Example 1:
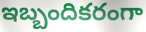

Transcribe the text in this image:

ఇబ్బందికరంగా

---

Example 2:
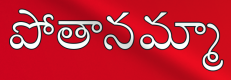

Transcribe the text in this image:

పోతానమ్మా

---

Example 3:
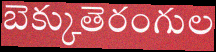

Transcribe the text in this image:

బెక్కుతెరంగుల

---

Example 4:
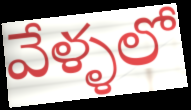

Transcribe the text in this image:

వేళ్ళలో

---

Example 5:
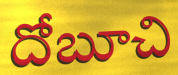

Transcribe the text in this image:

దోబూచి